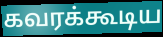
கவரக்கூடிய